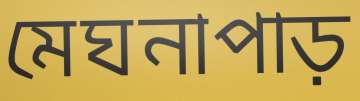
মেঘনাপাড়